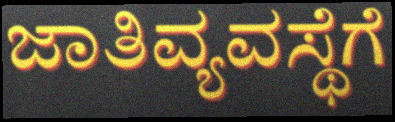
ಜಾತಿವ್ಯವಸ್ಥೆಗೆ